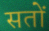
सतों